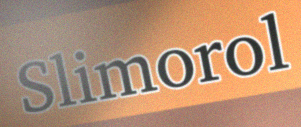
Slimorol